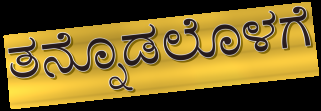
ತನ್ನೊಡಲೊಳಗೆ